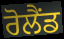
ਰੋਲੈਂਡ